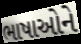
ભાષાઓને